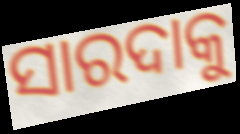
ସାରଦାକୁ